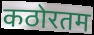
कठोरतम